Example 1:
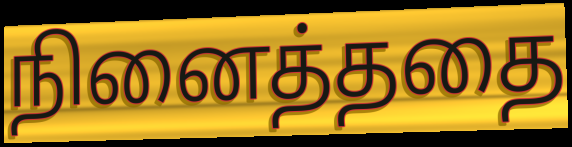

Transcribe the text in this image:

நினைத்ததை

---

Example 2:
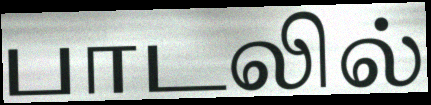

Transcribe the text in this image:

பாடலில்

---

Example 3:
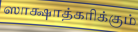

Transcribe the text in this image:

ஸாக்ஷாத்கரிக்கும்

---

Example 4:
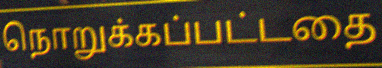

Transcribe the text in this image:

நொறுக்கப்பட்டதை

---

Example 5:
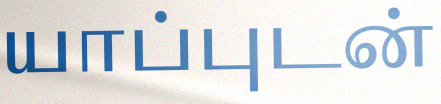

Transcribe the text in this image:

யாப்புடன்